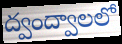
ద్వంద్వాలలో